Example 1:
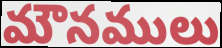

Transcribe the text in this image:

మౌనములు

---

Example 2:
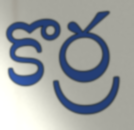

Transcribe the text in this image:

కొర్ర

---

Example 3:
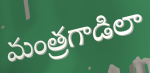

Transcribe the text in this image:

మంత్రగాడిలా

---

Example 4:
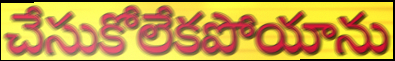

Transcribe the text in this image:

చేసుకోలేకపోయాను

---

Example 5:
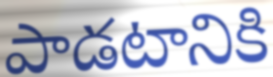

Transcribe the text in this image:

పాడటానికి